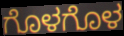
ಗೊಳಗೊಳ